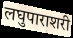
लघुपाराशरी